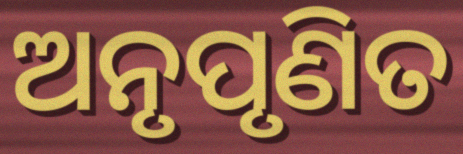
ଅନୃପୃଣିତ